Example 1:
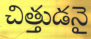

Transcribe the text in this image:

చిత్తుడనై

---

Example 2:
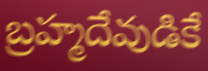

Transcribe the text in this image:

బ్రహ్మదేవుడికే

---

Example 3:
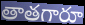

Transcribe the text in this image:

తాతగారూ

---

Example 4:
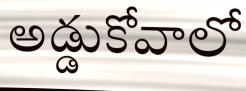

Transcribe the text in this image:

అడ్డుకోవాలో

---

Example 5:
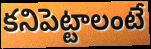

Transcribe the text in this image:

కనిపెట్టాలంటే